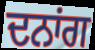
ਦਨਾਂਗ